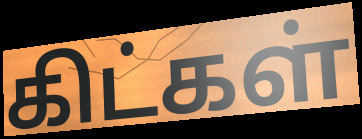
கிட்கள்